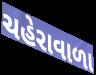
ચહેરાવાળા